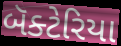
બૅક્ટેરિયા